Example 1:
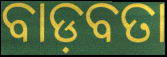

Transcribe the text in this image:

ବାଡ଼ବତା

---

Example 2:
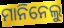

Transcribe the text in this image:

ମାନିନେଲୁ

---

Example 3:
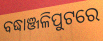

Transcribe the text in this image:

ବଦ୍ଧାଞ୍ଜଳିପୁଟରେ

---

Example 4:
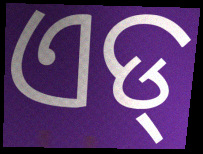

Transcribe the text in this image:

ଏଡ୍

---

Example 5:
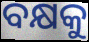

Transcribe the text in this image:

ବକ୍ଷକୁ